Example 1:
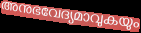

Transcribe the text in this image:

അനുഭവേദ്യമാവുകയും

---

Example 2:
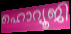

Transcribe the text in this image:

ഹൊറ്യൂജി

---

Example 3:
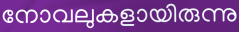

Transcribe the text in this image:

നോവലുകളായിരുന്നു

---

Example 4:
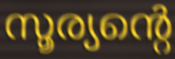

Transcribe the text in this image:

സൂര്യന്റെ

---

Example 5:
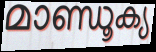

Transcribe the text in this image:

മാണ്ഡൂക്യ